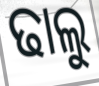
ଢାଲୁ